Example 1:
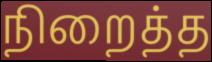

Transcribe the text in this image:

நிறைத்த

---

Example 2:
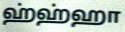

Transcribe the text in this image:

ஹ்ஹ்ஹா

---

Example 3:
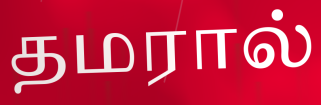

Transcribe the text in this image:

தமரால்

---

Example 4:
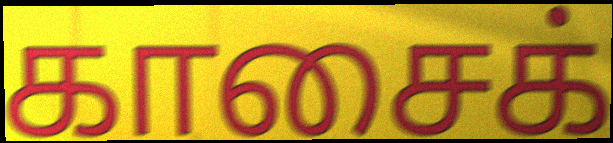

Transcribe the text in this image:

காசைக்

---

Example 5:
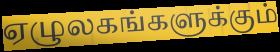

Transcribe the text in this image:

ஏழுலகங்களுக்கும்